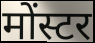
मोंस्टर